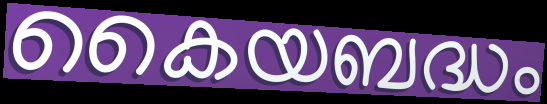
കൈയബദ്ധം